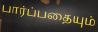
பார்ப்பதையும்